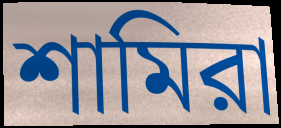
শামিরা